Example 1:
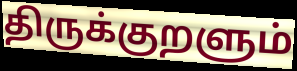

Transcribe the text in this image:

திருக்குறளும்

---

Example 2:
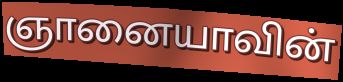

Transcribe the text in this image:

ஞானையாவின்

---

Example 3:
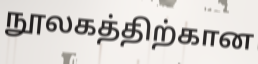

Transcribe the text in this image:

நூலகத்திற்கான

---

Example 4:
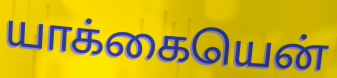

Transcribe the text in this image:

யாக்கையென்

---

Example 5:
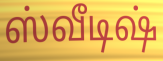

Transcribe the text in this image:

ஸ்வீடிஷ்